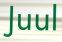
Juul